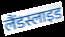
लैंडस्लाइड